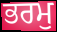
ਭਰਮੁ